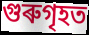
গুৰুগৃহত